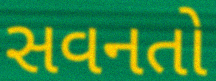
સવનતો